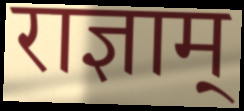
राज्ञाम्